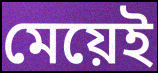
মেয়েই